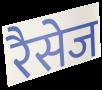
रैसेज